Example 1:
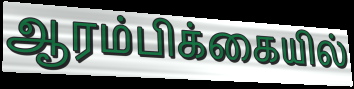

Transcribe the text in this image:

ஆரம்பிக்கையில்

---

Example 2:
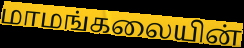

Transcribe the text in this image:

மாமங்கலையின்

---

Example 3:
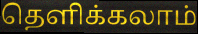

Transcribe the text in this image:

தெளிக்கலாம்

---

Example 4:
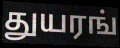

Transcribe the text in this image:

துயரங்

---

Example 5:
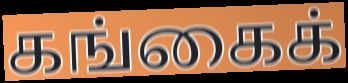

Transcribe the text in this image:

கங்கைக்